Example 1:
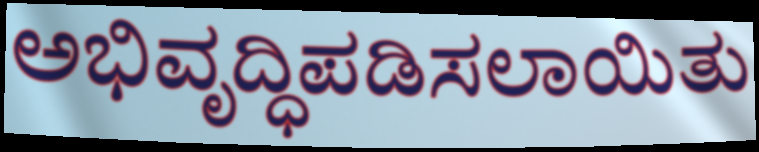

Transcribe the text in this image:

ಅಭಿವೃದ್ಧಿಪಡಿಸಲಾಯಿತು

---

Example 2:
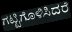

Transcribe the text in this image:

ಗಟ್ಟಿಗೊಳಿಸಿದರೆ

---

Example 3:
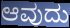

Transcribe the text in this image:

ಆವುದು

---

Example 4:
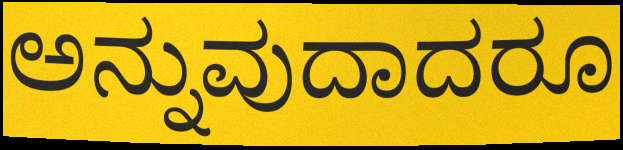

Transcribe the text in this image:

ಅನ್ನುವುದಾದರೂ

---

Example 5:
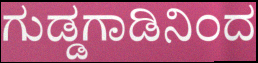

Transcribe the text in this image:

ಗುಡ್ಡಗಾಡಿನಿಂದ